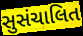
સુસંચાલિત